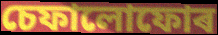
চেফালোফোৰ